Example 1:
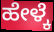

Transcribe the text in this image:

ಹೇಳ್ಕೆ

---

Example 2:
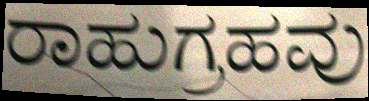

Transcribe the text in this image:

ರಾಹುಗ್ರಹವು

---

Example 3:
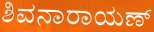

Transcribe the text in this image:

ಶಿವನಾರಾಯಣ್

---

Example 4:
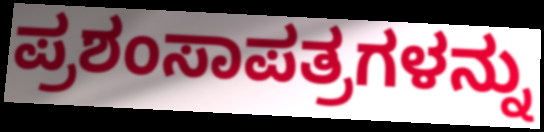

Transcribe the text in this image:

ಪ್ರಶಂಸಾಪತ್ರಗಳನ್ನು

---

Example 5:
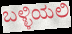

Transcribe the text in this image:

ಬಳ್ಳಿಯಲಿ